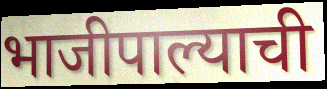
भाजीपाल्याची